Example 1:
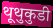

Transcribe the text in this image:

थूथुकुडी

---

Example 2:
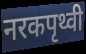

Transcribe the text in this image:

नरकपृथ्वी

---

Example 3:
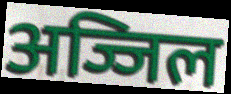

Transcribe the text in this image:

अज्जिल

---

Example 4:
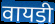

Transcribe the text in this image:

वायडी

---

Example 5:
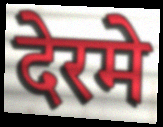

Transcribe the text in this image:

देरमे